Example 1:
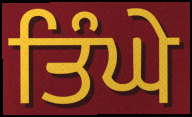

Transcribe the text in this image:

ਤਿੰਘੇ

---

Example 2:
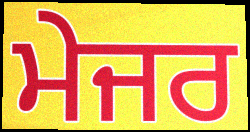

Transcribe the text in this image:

ਮੇਜਰ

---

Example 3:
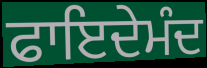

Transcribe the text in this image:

ਫਾਇਦੇਮੰਦ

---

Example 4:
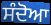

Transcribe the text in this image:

ਸੰਦੋਆ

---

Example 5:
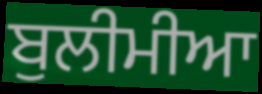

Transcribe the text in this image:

ਬੁਲੀਮੀਆ